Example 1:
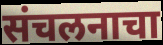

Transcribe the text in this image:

संचलनाचा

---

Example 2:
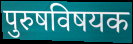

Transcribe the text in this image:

पुरुषविषयक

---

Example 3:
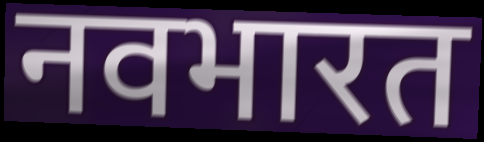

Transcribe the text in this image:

नवभारत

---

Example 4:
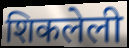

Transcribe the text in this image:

शिकलेली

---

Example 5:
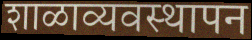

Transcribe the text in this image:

शाळाव्यवस्थापन